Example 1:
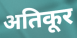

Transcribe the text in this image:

अतिकूर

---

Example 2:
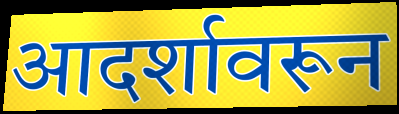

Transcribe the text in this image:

आदर्शावरून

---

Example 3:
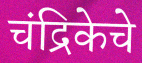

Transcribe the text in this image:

चंद्रिकेचे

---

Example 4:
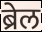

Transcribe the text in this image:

ब्रेल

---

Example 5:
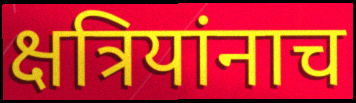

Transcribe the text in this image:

क्षत्रियांनाच